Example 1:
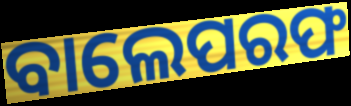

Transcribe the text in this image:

ବାଲେପରଫ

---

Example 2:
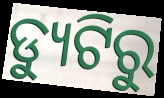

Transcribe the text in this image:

ଡ୍ୟୁଟିରୁ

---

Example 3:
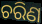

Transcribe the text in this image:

ଚରିଣ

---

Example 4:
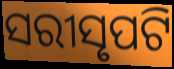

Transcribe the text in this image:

ସରୀସୃପଟି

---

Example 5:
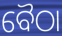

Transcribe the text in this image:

ବୈଠା